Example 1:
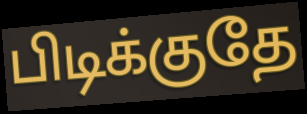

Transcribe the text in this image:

பிடிக்குதே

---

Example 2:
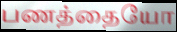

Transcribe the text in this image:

பணத்தையோ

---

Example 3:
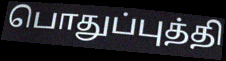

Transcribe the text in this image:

பொதுப்புத்தி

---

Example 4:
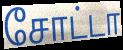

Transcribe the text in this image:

சோட்டா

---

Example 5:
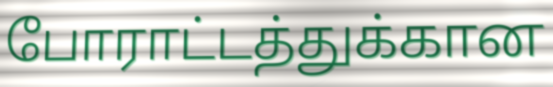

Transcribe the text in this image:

போராட்டத்துக்கான